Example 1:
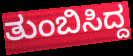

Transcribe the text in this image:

ತುಂಬಿಸಿದ್ದ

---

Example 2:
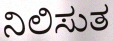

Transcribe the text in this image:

ನಿಲಿಸುತ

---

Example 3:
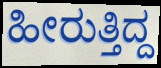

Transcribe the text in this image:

ಹೀರುತ್ತಿದ್ದ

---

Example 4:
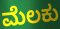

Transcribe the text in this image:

ಮೆಲಕು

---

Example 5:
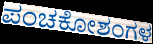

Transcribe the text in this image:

ಪಂಚಕೋಶಂಗಳ